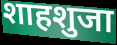
शाहशुजा